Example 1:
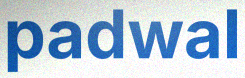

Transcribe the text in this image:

padwal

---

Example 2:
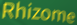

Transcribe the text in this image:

Rhizome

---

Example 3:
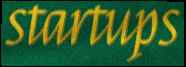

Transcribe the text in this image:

startups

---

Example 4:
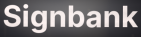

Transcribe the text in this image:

Signbank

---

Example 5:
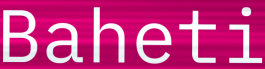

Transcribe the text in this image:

Baheti